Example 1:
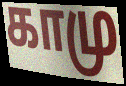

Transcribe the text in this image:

காமு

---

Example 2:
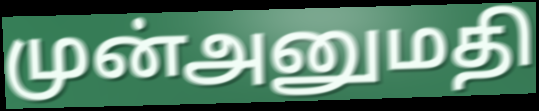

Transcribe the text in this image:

முன்அனுமதி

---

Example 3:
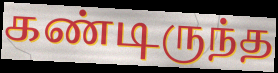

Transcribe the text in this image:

கண்டிருந்த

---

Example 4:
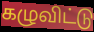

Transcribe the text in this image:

கழுவிட்டு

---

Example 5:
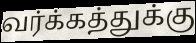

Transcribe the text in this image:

வர்க்கத்துக்கு